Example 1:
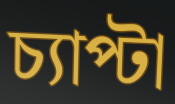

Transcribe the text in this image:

চ্যাপ্টা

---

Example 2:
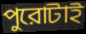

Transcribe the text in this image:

পুরোটাই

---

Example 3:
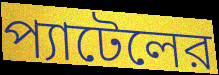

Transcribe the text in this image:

প্যাটেলের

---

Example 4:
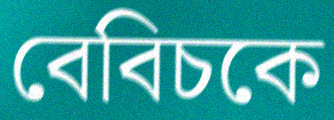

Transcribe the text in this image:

বেবিচকে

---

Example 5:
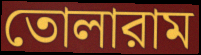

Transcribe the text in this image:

তোলারাম